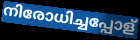
നിരോധിച്ചപ്പോള്